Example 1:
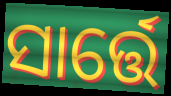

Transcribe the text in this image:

ସାର୍ତ୍ତେ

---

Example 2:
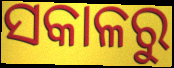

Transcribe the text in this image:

ସକାଳରୁ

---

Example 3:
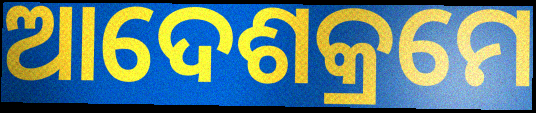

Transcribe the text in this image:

ଆଦେଶକ୍ରମେ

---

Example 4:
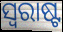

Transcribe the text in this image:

ସ୍ୱରାଷ୍ଟ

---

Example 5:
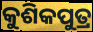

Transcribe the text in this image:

କୁଶିକପୁତ୍ର